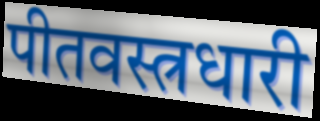
पीतवस्त्रधारी